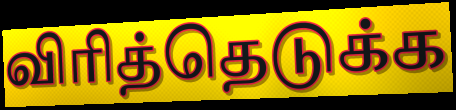
விரித்தெடுக்க